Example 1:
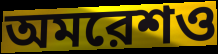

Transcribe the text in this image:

অমরেশও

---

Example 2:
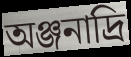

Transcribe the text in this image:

অঞ্জনাদ্রি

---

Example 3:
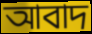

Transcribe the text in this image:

আবাদ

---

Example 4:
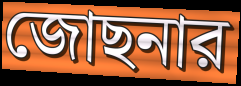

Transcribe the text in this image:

জোছনার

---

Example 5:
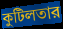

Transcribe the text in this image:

কুটিলতার